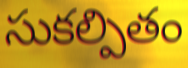
సుకల్పితం